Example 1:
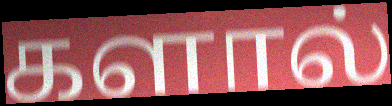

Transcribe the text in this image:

களால்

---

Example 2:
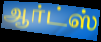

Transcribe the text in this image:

ஆர்ட்ஸ்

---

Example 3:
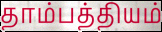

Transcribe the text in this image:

தாம்பத்தியம்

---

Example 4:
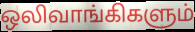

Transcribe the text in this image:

ஒலிவாங்கிகளும்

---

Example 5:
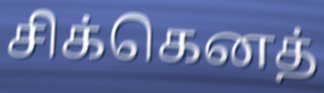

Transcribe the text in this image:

சிக்கெனத்